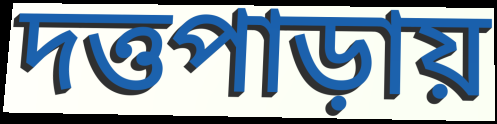
দত্তপাড়ায়